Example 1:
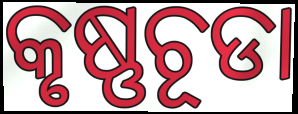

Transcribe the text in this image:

କୃଷ୍ଣଚୂଡା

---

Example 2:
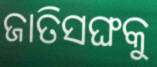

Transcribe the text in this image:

ଜାତିସଙ୍ଘକୁ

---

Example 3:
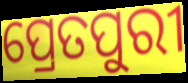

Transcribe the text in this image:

ପ୍ରେତପୁରୀ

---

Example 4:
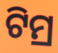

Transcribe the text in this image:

ଟିମ୍ର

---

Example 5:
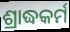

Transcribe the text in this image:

ଶ୍ରାଦ୍ଧକର୍ମ